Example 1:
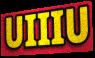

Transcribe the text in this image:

UIIIU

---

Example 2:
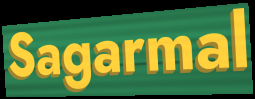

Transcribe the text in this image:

Sagarmal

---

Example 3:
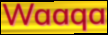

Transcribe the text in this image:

Waaqa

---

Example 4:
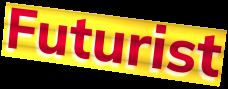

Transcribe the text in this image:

Futurist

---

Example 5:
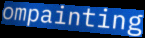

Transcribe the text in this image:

ompainting